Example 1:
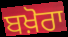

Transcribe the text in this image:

ਬਖ਼ੋਰਾ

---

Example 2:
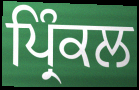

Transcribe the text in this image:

ਪ੍ਰਿੰਕਲ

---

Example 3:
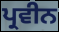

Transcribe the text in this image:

ਪ੍ਰਵੀਨ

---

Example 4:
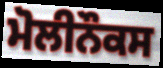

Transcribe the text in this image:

ਮੋਲੀਨੌਕਸ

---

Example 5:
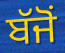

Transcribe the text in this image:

ਬੱਜੋਂ